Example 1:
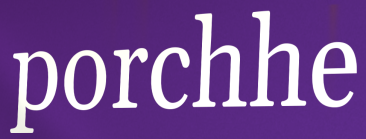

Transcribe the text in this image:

porchhe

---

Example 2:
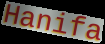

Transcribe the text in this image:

Hanifa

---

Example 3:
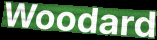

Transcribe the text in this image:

Woodard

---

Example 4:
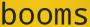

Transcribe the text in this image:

booms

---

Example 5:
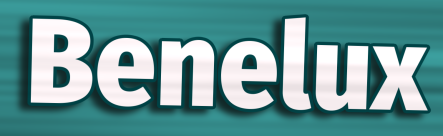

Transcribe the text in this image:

Benelux